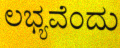
ಲಭ್ಯವೆಂದು